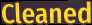
Cleaned